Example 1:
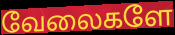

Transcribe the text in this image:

வேலைகளே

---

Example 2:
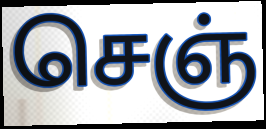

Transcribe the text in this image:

செஞ்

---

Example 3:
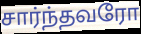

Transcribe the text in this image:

சார்ந்தவரோ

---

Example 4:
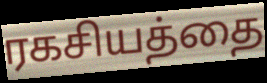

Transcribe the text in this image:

ரகசியத்தை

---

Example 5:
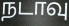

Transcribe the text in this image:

நடாவு